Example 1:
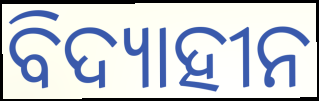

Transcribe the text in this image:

ବିଦ୍ୟାହୀନ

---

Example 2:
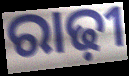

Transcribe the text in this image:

ରାଢ଼ୀ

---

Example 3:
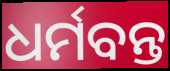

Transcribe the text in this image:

ଧର୍ମବନ୍ତ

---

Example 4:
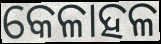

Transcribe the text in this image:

କେଳାହଳ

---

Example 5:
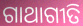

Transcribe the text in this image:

ଗାଥାଗୀତି